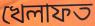
খেলাফত